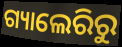
ଗ୍ୟାଲେରିରୁ